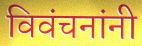
विवंचनांनी